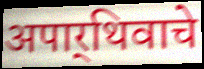
अपार्थिवाचे